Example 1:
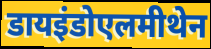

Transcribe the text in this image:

डायइंडोएलमीथेन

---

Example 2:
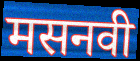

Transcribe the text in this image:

मसनवी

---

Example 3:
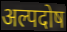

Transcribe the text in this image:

अल्पदोष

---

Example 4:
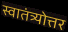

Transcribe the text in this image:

स्वातंत्र्योत्तर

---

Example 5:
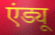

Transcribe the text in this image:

एंड्यू